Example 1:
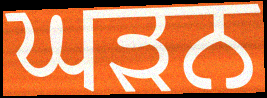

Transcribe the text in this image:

ਘੜਨ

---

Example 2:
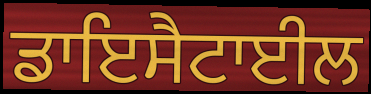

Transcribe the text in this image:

ਡਾਇਸੈਟਾਈਲ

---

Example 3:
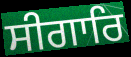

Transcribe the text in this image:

ਸੀਗਾਰਿ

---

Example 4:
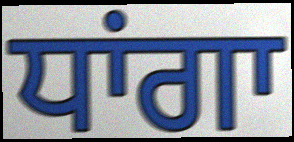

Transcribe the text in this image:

ਧਾਂਗਾ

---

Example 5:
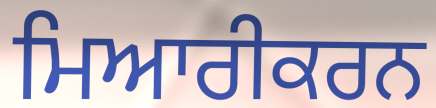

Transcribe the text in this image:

ਮਿਆਰੀਕਰਨ